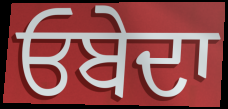
ਓਬੇਦਾ